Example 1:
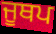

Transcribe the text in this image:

ਜੂਥਪ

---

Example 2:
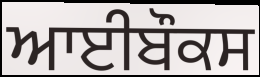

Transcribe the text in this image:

ਆਈਬੌਕਸ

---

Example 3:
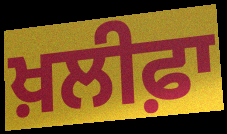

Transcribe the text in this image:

ਖ਼ਲੀਫ਼ਾ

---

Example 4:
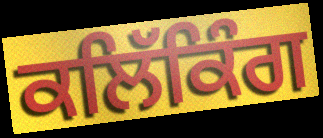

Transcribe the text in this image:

ਕਲਿੱਕਿੰਗ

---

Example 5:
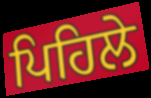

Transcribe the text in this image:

ਪਿਹਿਲੇ